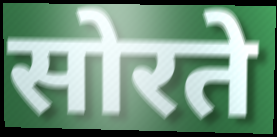
सोरते